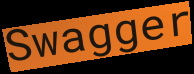
Swagger